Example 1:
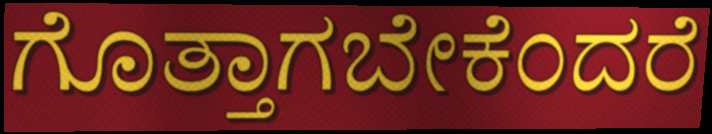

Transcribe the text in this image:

ಗೊತ್ತಾಗಬೇಕೆಂದರೆ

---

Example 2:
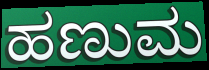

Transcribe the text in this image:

ಹಣುಮ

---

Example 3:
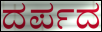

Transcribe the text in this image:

ದರ್ಪದ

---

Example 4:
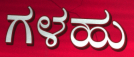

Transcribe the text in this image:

ಗಳಹು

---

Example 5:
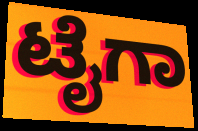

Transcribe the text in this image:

ಟೈಗಾ